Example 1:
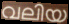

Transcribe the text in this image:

വലിയ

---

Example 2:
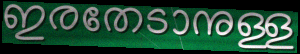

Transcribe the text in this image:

ഇരതേടാനുള്ള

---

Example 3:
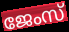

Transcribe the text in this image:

ജേംസ്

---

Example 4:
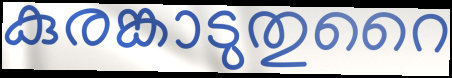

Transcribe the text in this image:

കുരങ്കാടുതുറൈ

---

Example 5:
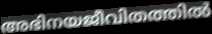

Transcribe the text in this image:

അഭിനയജീവിതത്തിൽ